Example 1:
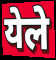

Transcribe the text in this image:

येले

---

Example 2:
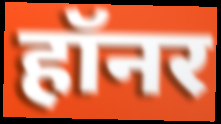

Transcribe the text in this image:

हॉनर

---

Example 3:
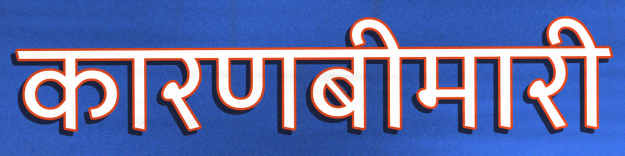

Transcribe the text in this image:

कारणबीमारी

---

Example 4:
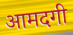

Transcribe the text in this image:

आमदगी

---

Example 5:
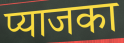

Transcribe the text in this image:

प्याजका